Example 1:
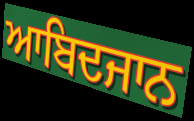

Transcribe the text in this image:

ਆਬਿਦਜਾਨ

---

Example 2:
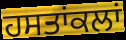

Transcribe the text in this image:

ਹਸਤਾਂਕਲਾਂ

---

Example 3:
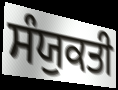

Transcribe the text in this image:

ਸੰਯੁਕਤੀ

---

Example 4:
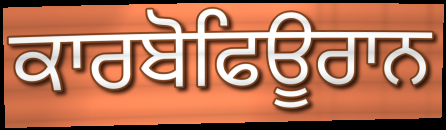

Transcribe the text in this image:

ਕਾਰਬੋਫਿਊਰਾਨ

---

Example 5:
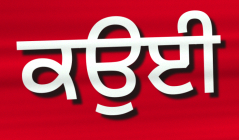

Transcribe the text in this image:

ਕਉਈ